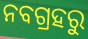
ନବଗ୍ରହରୁ